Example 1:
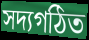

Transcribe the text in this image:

সদ্যগঠিত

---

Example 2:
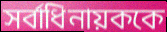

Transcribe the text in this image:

সর্বাধিনায়ককে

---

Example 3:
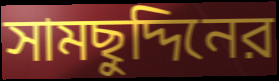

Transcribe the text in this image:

সামছুদ্দিনের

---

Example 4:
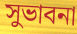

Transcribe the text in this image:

সুভাবনা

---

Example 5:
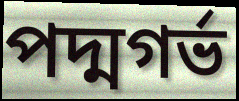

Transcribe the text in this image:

পদ্মগর্ভ